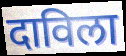
दाविला